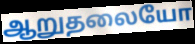
ஆறுதலையோ